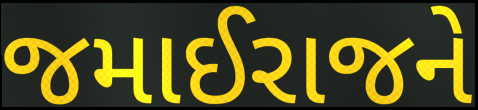
જમાઈરાજને